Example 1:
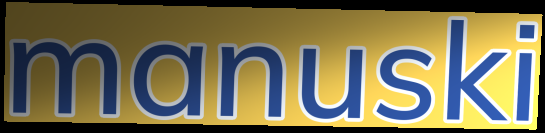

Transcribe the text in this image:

manuski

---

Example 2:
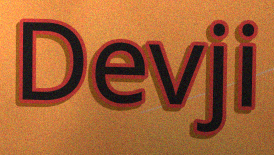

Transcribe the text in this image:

Devji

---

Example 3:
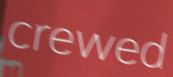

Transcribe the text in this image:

crewed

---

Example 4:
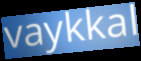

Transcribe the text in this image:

vaykkal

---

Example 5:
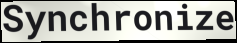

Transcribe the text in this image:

Synchronize